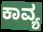
ಕಾವ್ಯ